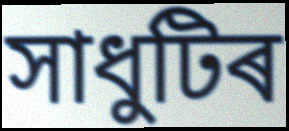
সাধুটিৰ